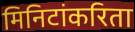
मिनिटांकरिता